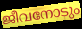
ജീവനോടും